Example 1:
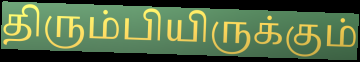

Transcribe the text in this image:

திரும்பியிருக்கும்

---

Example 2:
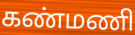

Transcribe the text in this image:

கண்மணி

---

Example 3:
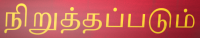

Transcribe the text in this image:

நிறுத்தப்படும்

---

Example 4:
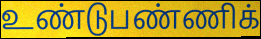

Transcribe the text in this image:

உண்டுபண்ணிக்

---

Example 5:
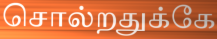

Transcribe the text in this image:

சொல்றதுக்கே